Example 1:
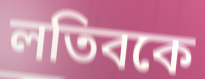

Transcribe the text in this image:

লতিবকে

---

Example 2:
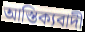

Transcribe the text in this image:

আস্তিক্যবাদী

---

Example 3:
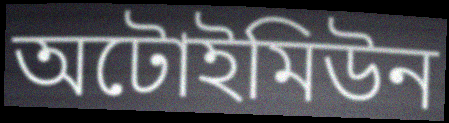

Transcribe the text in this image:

অটোইমিউন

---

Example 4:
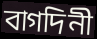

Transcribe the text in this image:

বাগদিনী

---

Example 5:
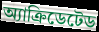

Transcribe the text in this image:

অ্যাক্রিডেটেড